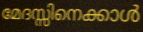
മേദസ്സിനെക്കാൾ